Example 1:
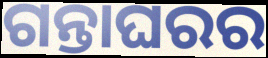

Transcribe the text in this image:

ଗନ୍ତାଘରର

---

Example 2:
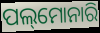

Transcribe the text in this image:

ପଲ୍‌ମୋନାରି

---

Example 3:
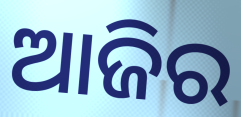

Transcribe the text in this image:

ଆଜିର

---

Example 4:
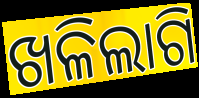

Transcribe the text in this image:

ଖଳିଲାଗି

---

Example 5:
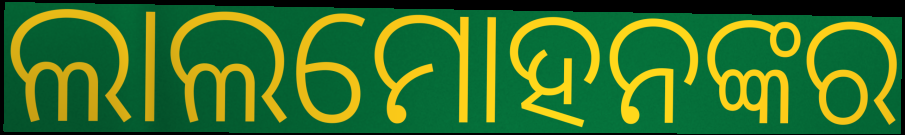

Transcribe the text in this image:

ଲାଲମୋହନଙ୍କର